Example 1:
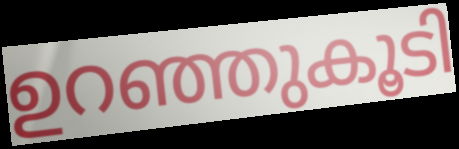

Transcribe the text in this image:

ഉറഞ്ഞുകൂടി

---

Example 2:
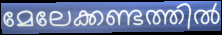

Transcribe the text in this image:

മേലേക്കണ്ടത്തിൽ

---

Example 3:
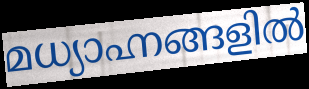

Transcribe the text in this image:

മധ്യാഹ്നങ്ങളിൽ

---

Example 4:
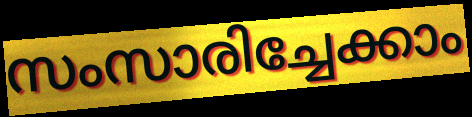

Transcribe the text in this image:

സംസാരിച്ചേക്കാം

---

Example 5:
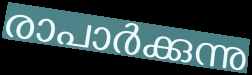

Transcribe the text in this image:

രാപാർക്കുന്നു